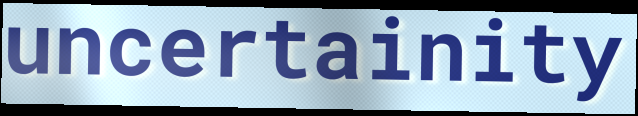
uncertainity